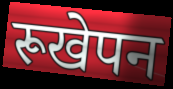
रूखेपन